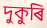
দুকুৰি